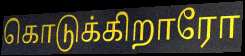
கொடுக்கிறாரோ